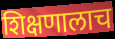
शिक्षणालाच